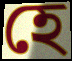
হে